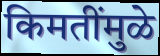
किमतींमुळे